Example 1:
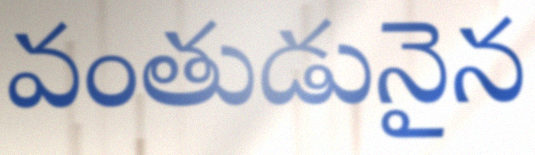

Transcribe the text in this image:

వంతుడునైన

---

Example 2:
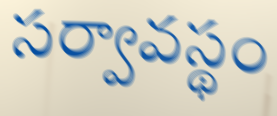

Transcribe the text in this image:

సర్వావస్థం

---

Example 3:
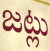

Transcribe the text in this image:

జట్లు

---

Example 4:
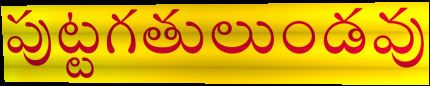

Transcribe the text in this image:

పుట్టగతులుండవు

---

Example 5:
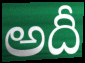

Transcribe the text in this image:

అదీ